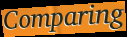
Comparing